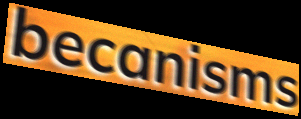
becanisms